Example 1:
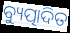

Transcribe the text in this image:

ବ୍ୟୁତ୍ପାଦିତ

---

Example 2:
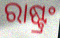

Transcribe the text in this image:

ରାଷ୍ଟ୍ରଂ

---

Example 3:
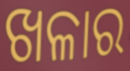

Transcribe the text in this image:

ଖଳାର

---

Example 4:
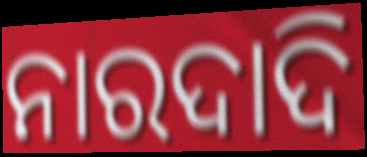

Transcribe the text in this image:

ନାରଦାଦି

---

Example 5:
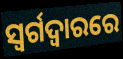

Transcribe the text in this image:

ସ୍ୱର୍ଗଦ୍ୱାରରେ